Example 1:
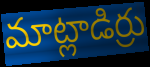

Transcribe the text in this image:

మాట్లాడిర్రు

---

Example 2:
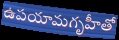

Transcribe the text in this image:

ఉపయామగృహీతో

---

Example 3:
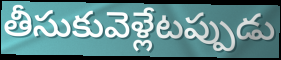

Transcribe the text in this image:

తీసుకువెళ్లేటప్పుడు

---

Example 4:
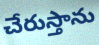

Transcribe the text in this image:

చేరుస్తాను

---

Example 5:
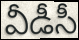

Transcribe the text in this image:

వీడీసీ